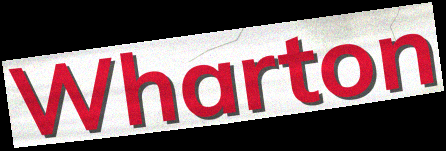
Wharton